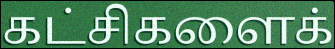
கட்சிகளைக்